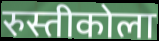
रुस्तीकोला